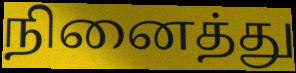
நினைத்து